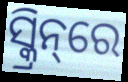
ସ୍କ୍ରିନ୍‌ରେ